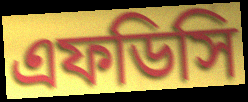
এফডিসি